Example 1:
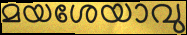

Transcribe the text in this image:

മയശേയാവു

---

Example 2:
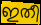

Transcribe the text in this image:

ഇതീ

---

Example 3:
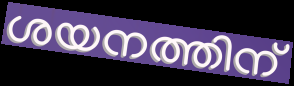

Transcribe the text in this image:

ശയനത്തിന്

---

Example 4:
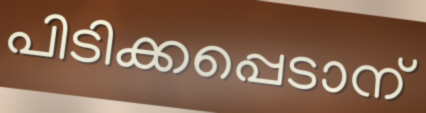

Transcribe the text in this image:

പിടിക്കപ്പെടാന്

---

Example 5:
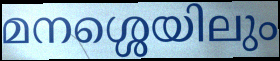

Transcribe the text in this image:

മനശ്ശെയിലും